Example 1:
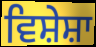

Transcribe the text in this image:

ਵਿਸ਼ੇਸ਼ਾ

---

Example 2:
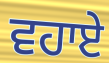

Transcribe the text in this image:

ਵਹਾਏ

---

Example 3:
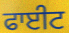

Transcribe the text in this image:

ਫਾਈਟ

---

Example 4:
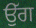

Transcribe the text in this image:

ਉੱਗ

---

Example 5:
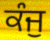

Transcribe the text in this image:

ਕੰਜੁ